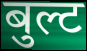
बुल्ट